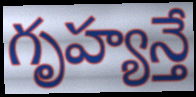
గృహ్యన్తే